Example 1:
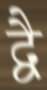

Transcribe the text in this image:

द्वै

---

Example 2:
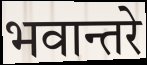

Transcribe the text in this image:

भवान्तरे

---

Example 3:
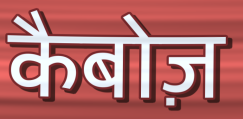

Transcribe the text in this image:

कैबोज़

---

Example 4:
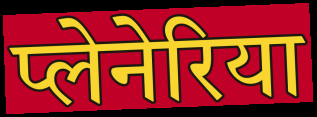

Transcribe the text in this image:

प्लेनेरिया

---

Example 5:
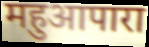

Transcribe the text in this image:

महुआपारा